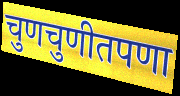
चुणचुणीतपणा